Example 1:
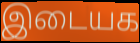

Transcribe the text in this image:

இடையக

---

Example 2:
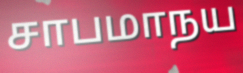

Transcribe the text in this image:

சாபமாநய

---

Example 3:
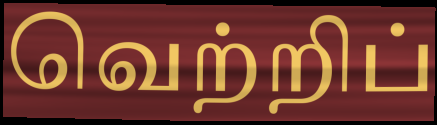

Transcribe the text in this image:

வெற்றிப்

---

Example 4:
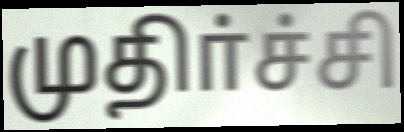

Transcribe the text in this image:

முதிர்ச்சி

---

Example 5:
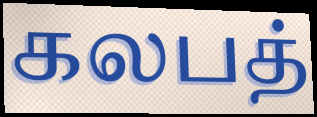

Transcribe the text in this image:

கலபத்